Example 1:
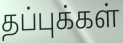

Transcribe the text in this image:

தப்புக்கள்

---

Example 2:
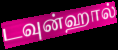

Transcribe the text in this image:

டவுன்ஹால்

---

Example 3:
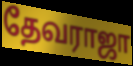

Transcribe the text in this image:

தேவராஜா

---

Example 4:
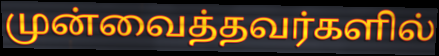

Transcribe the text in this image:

முன்வைத்தவர்களில்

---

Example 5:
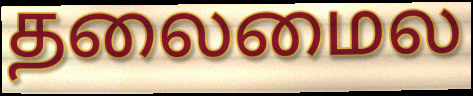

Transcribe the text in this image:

தலைமைல